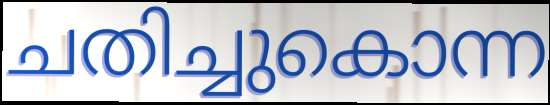
ചതിച്ചുകൊന്ന